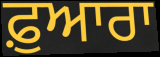
ਫ਼ੁਆਰਾ